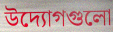
উদ্যোগগুলো